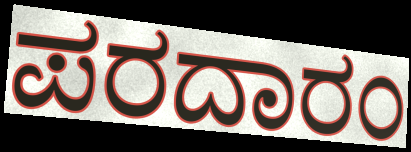
ಪರದಾರಂ